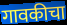
गावकीचा